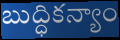
బుద్ధికన్యాం